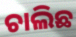
ଚାଲିଛ